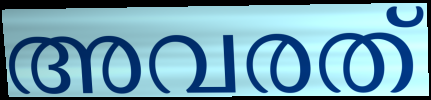
അവരത്